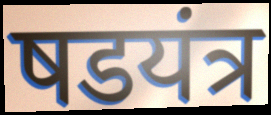
षडयंत्र